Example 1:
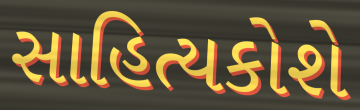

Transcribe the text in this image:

સાહિત્યકોશે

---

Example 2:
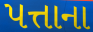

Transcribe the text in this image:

પત્તાના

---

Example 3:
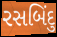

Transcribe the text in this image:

રસબિંદુ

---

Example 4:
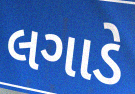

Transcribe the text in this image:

લગાડે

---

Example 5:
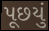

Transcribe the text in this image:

પૂછયું